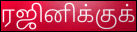
ரஜினிக்குக்